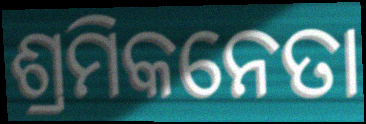
ଶ୍ରମିକନେତା